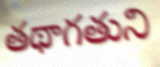
తథాగతుని